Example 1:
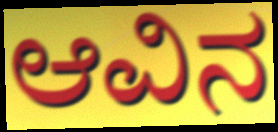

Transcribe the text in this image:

ಆವಿನ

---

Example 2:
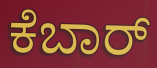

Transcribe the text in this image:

ಕೆಬಾರ್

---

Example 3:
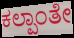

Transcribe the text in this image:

ಕಲ್ಪಾಂತೇ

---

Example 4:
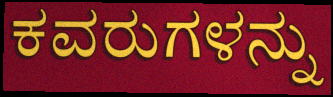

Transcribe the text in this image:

ಕವರುಗಳನ್ನು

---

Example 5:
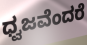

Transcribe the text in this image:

ಧ್ವಜವೆಂದರೆ